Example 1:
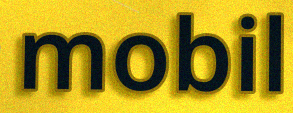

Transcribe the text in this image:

mobil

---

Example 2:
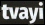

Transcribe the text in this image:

tvayi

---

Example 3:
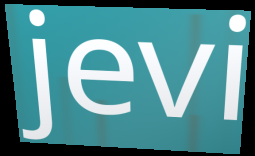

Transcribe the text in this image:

jevi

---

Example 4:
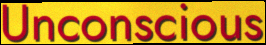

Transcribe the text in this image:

Unconscious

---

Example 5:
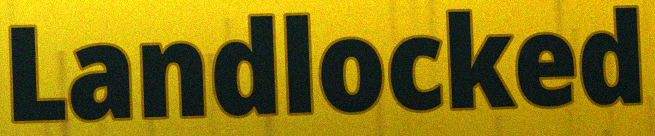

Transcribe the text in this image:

Landlocked